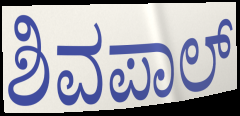
ಶಿವಪಾಲ್